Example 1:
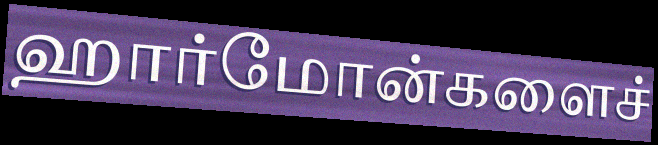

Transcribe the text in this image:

ஹார்மோன்களைச்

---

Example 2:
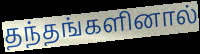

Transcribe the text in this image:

தந்தங்களினால்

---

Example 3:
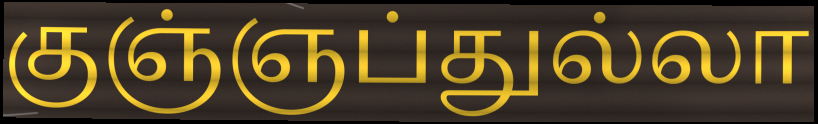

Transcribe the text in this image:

குஞ்ஞப்துல்லா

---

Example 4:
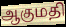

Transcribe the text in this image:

ஆகுமதி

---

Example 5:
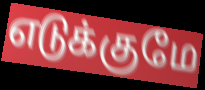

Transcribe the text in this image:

எடுக்குமே